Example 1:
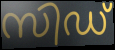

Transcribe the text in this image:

സിഡ്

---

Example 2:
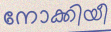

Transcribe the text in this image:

നോക്കിയീ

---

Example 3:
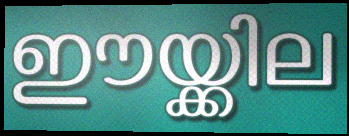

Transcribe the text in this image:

ഈയ്ക്കില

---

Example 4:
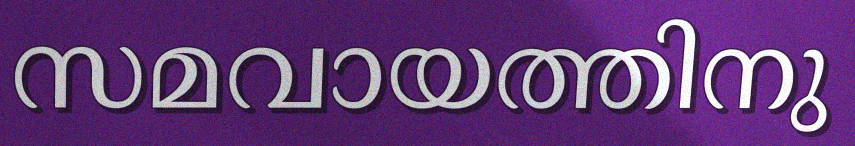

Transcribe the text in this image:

സമവായത്തിനു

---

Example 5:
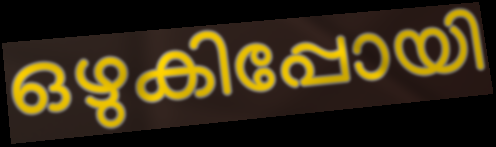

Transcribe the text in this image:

ഒഴുകിപ്പോയി